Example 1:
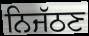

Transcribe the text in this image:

ਨਿਜੱਠਣ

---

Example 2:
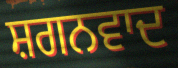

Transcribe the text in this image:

ਸ਼ਗਨਵਾਦ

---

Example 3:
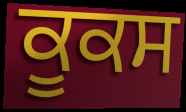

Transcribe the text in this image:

ਕੂਕਸ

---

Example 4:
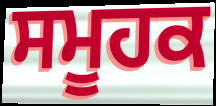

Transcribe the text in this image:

ਸਮੂਹਕ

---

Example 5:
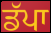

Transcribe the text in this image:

ਡੱਪਾ